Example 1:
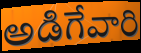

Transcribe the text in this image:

అడిగేవారి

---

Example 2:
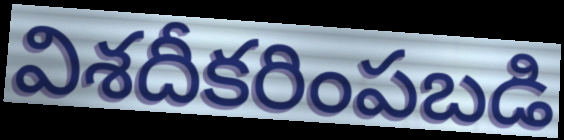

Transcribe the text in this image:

విశదీకరింపబడి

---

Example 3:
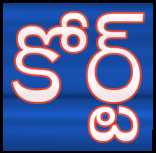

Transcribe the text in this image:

కోర్ట్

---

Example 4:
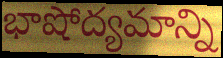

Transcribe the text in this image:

భాషోద్యమాన్ని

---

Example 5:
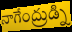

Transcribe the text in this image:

నాగేంద్రుడ్ని